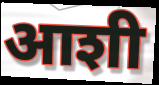
आशी